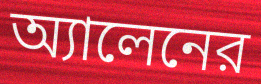
অ্যালেনের